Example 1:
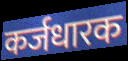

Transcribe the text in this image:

कर्जधारक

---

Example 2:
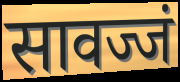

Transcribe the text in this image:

सावज्जं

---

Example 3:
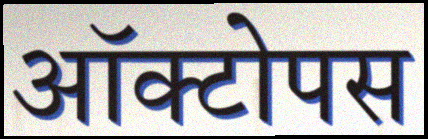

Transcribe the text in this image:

ऑक्टोपस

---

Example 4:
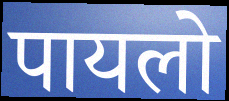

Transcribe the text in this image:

पायलो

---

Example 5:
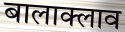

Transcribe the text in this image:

बालाक्लाव